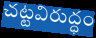
చట్టవిరుద్ధం